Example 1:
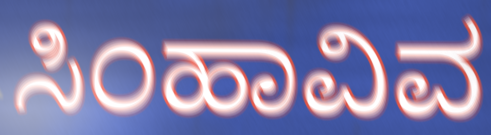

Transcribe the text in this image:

ಸಿಂಹಾವಿವ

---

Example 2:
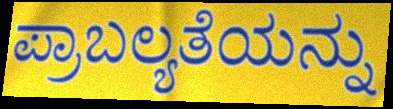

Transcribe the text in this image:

ಪ್ರಾಬಲ್ಯತೆಯನ್ನು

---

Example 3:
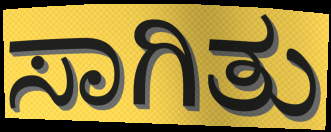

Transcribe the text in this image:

ಸಾಗಿತು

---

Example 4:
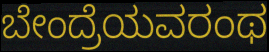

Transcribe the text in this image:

ಬೇಂದ್ರೆಯವರಂಥ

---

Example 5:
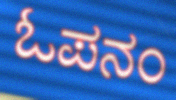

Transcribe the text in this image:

ಓಪನಂ